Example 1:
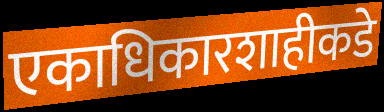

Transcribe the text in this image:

एकाधिकारशाहीकडे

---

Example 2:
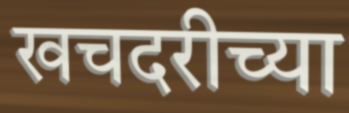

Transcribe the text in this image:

खचदरीच्या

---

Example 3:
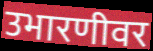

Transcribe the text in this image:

उभारणीवर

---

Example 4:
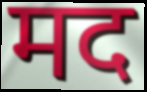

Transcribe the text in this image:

मद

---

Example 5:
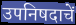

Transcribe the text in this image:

उपनिषदाचें